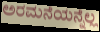
ಅರಮನೆಯನ್ನೆಲ್ಲ